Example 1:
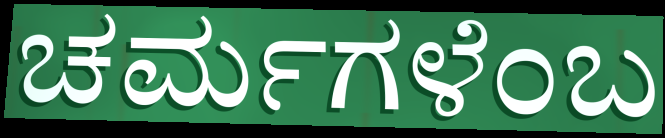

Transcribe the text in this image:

ಚರ್ಮಗಳೆಂಬ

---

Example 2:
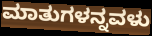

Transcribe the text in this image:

ಮಾತುಗಳನ್ನವಳು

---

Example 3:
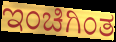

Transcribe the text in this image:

ಇಂಚಿಗಿಂತ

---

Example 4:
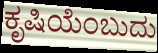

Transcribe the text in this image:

ಕೃಷಿಯೆಂಬುದು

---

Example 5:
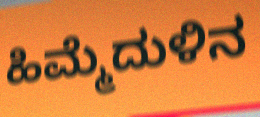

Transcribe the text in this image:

ಹಿಮ್ಮೆದುಳಿನ